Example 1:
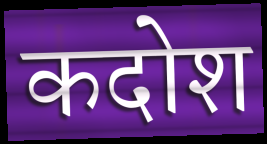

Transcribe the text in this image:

कदोश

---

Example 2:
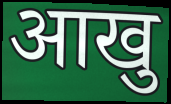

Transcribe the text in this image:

आखु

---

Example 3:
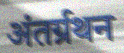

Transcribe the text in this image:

अंतर्ग्रथन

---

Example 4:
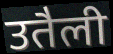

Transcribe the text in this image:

उतैली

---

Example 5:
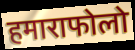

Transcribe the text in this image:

हमाराफोलो